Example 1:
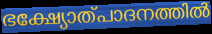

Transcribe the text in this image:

ഭക്ഷ്യോത്പാദനത്തിൽ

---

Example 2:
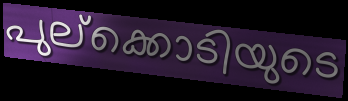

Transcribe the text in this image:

പുല്ക്കൊടിയുടെ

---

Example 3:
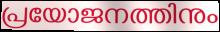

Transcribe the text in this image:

പ്രയോജനത്തിനും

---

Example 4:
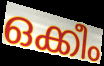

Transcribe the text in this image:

ഒക്കീം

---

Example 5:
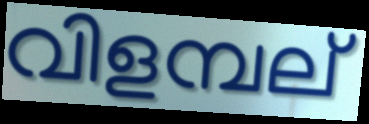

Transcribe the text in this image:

വിളമ്പല്